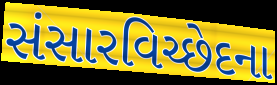
સંસારવિચ્છેદના